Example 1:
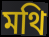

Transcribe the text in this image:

মথি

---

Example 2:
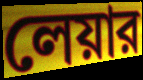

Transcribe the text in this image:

লেয়ার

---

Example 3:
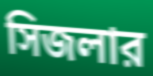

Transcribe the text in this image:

সিজলার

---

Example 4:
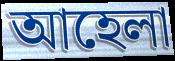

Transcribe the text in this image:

আহেলা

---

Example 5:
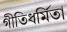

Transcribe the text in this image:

গীতিধর্মিতা